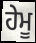
ਹੇਮੂ